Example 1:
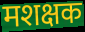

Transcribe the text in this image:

मशक्षक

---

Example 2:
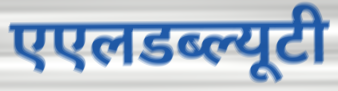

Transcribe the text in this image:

एएलडब्ल्यूटी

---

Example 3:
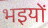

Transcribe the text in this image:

भइयों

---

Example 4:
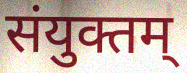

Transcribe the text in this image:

संयुक्तम्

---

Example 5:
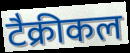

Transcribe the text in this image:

टैक्रीकल